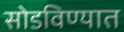
सोडविण्यात